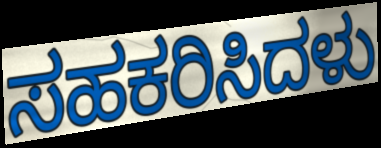
ಸಹಕರಿಸಿದಳು